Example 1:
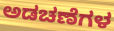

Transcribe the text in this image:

ಅಡಚಣೆಗಳ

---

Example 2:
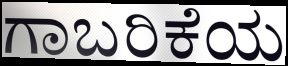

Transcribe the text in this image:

ಗಾಬರಿಕೆಯ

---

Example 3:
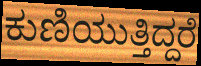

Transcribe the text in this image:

ಕುಣಿಯುತ್ತಿದ್ದರೆ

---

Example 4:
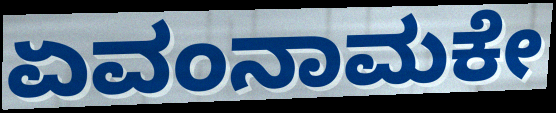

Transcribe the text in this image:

ಏವಂನಾಮಕೇ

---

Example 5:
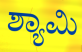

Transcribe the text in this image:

ಶ್ಯಾಮಿ